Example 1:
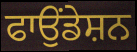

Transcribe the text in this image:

ਫਾਉਂਡੇਸ਼ਨ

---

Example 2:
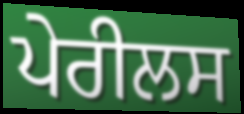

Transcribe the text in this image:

ਪੇਰੀਲਸ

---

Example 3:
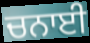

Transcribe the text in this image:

ਚਨਾਈ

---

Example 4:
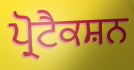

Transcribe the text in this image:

ਪ੍ਰੋਟੈਕਸ਼ਨ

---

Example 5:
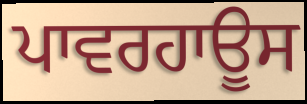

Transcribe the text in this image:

ਪਾਵਰਹਾਊਸ